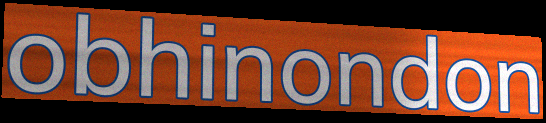
obhinondon